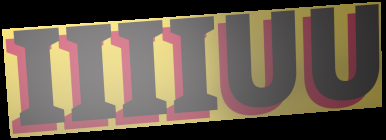
IIIIUU